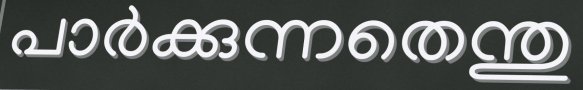
പാർക്കുന്നതെന്തു